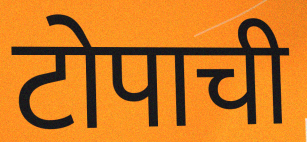
टोपाची